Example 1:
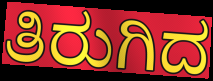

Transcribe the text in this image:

ತಿರುಗಿದ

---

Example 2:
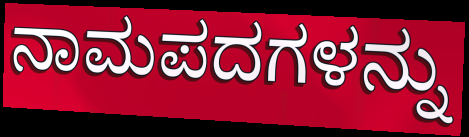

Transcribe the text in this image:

ನಾಮಪದಗಳನ್ನು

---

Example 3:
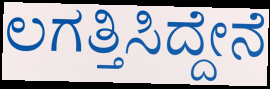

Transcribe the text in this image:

ಲಗತ್ತಿಸಿದ್ದೇನೆ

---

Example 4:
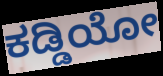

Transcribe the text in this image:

ಕಡ್ಡಿಯೋ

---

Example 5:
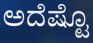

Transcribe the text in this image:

ಅದೆಷ್ಟೊ